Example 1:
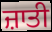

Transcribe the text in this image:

ਜ਼ਾਤੀ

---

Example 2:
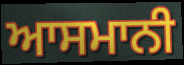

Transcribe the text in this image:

ਆਸਮਾਨੀ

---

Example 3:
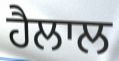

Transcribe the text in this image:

ਹੈਲਾਲ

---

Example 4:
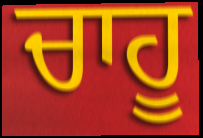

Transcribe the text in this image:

ਚਾਹੂ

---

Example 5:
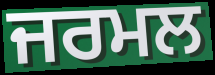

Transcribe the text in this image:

ਜਰਮਲ